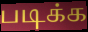
படிக்க